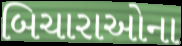
બિચારાઓના